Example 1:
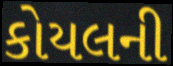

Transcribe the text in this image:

કોયલની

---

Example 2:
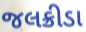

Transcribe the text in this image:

જલક્રીડા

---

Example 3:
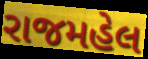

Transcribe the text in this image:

રાજમહેલ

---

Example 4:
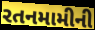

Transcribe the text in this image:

રતનમામીની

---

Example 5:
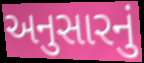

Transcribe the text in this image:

અનુસારનું